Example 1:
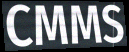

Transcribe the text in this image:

CMMS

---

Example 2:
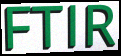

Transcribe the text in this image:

FTIR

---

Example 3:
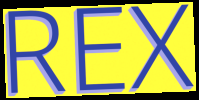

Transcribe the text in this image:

REX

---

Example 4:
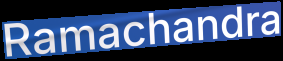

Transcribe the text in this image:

Ramachandra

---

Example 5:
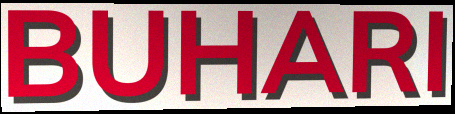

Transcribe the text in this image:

BUHARI